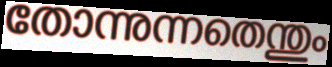
തോന്നുന്നതെന്തും